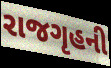
રાજગૃહની